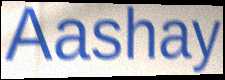
Aashay